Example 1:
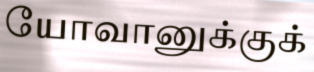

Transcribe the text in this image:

யோவானுக்குக்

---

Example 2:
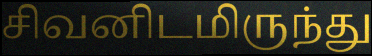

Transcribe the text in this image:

சிவனிடமிருந்து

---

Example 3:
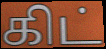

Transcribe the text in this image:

கிட்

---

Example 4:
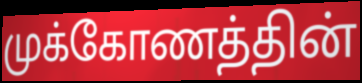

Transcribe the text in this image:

முக்கோணத்தின்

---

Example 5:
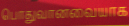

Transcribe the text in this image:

பொதுவானவையாக